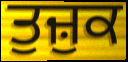
ਤੁਜ਼ੁਕ